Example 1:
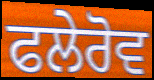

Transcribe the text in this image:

ਫਲੇਰੋਵ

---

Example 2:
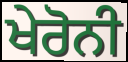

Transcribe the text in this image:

ਖੇਰੋਨੀ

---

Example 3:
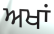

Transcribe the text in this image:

ਅਖਾਂ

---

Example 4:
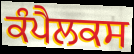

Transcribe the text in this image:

ਕੰਪੈਲਕਸ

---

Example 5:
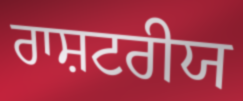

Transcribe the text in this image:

ਰਾਸ਼ਟਰੀਯ